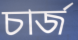
চার্জ